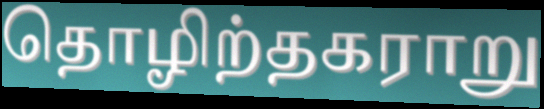
தொழிற்தகராறு